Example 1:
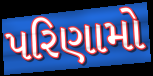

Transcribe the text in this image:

પરિણામો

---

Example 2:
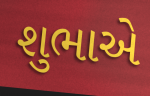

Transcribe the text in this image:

શુભાએ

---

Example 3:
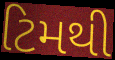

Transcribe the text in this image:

ટિમથી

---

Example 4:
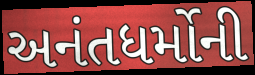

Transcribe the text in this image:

અનંતધર્મોની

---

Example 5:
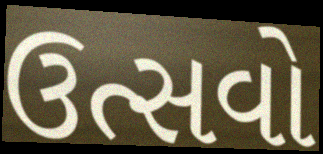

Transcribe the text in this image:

ઉત્સવો